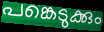
പങ്കെടുക്കും